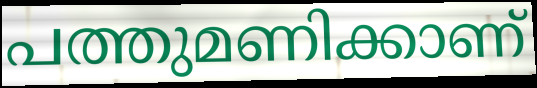
പത്തുമണിക്കാണ്